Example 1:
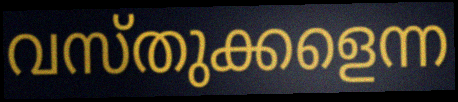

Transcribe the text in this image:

വസ്തുക്കളെന്ന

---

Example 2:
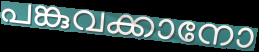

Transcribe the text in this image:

പങ്കുവക്കാനോ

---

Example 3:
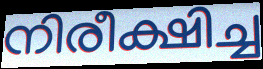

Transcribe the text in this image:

നിരീക്ഷിച്ച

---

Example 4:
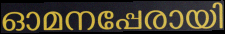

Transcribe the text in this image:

ഓമനപ്പേരായി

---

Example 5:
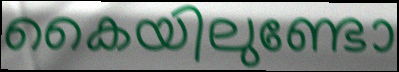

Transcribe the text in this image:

കൈയിലുണ്ടോ